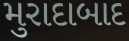
મુરાદાબાદ